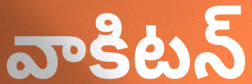
వాకిటన్